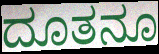
ದೂತನೂ